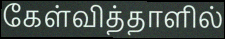
கேள்வித்தாளில்